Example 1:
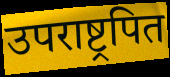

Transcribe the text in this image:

उपराष्ट्रपित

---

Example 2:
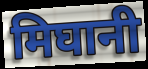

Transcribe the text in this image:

मिघानी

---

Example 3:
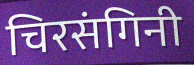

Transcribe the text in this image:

चिरसंगिनी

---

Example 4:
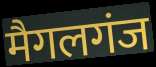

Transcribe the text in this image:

मैगलगंज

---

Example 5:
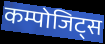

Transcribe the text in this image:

कम्पोजिट्स